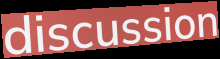
discussion